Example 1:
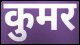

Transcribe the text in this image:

कुमर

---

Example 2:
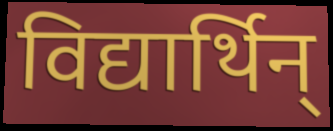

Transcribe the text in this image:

विद्यार्थिन्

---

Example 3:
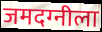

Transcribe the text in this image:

जमदग्नीला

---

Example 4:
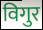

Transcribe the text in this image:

विगुर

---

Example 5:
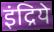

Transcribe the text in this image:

इंद्रिये